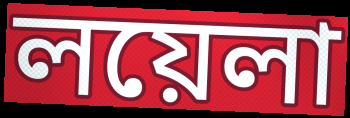
লয়েলা